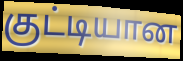
குட்டியான